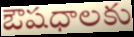
ఔషధాలకు